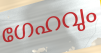
ഗേഹവും